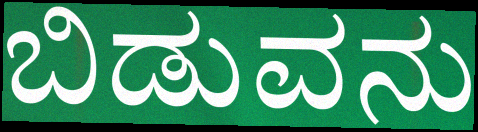
ಬಿಡುವನು